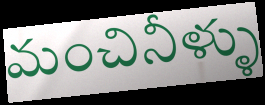
మంచినీళ్ళు